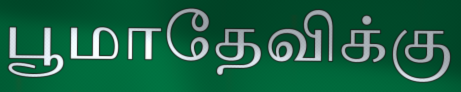
பூமாதேவிக்கு